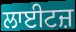
ਲਾਈਟਜ਼